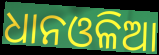
ଧାନଓଳିଆ